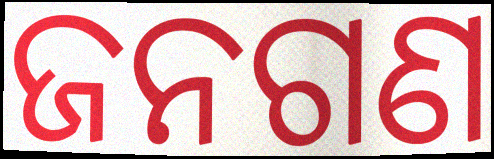
ଜନଗଣ